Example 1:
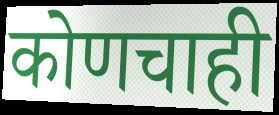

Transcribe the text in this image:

कोणचाही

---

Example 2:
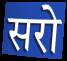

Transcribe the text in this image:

सरो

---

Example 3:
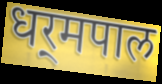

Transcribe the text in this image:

धर्मपाल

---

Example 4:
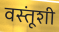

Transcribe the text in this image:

वस्तूंशी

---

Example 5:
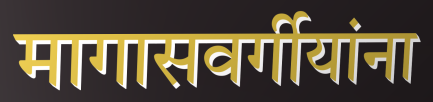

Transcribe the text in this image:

मागासवर्गीयांना